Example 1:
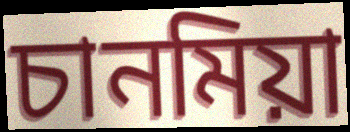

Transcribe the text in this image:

চানমিয়া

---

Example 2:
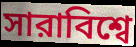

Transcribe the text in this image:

সারাবিশ্বে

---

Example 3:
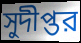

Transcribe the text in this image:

সুদীপ্তর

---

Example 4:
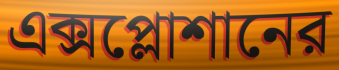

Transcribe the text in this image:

এক্সপ্লোশানের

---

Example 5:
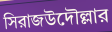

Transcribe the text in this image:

সিরাজউদৌল্লার